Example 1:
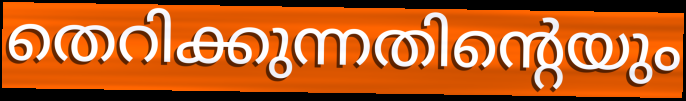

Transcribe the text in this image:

തെറിക്കുന്നതിന്റെയും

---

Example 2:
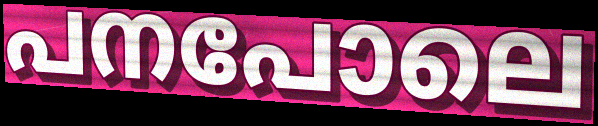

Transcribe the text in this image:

പനപോലെ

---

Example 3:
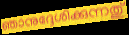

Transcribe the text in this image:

ഞാനുദ്ദേശിക്കുന്നതു്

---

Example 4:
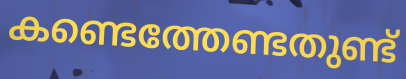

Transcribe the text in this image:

കണ്ടെത്തേണ്ടതുണ്ട്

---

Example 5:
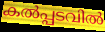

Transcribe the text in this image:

കൽപ്പടവിൽ